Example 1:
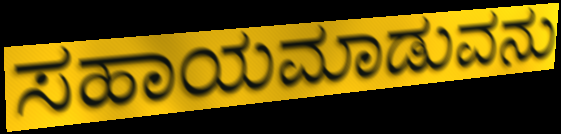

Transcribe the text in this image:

ಸಹಾಯಮಾಡುವನು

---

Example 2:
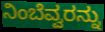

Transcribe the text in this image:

ನಿಂಬೆವ್ವರನ್ನು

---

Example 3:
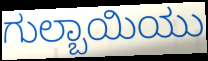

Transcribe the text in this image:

ಗುಲ್ಬಾಯಿಯು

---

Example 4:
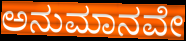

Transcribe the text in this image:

ಅನುಮಾನವೇ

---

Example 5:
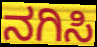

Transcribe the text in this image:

ನಗಿಸಿ